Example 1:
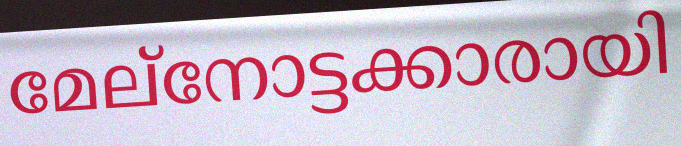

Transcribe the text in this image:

മേല്നോട്ടക്കാരായി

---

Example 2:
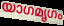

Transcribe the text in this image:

യാഗമൃഗം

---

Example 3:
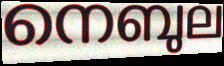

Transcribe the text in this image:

നെബുല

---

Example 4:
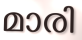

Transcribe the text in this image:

മാരി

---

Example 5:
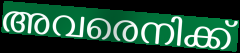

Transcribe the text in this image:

അവരെനിക്ക്